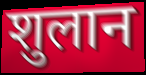
शुलान